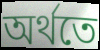
অৰ্থতে